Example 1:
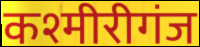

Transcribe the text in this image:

कश्मीरीगंज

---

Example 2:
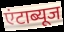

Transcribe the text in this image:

एंटाब्यूज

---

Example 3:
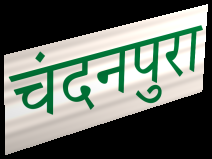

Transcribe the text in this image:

चंदनपुरा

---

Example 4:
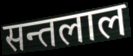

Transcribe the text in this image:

सन्तलाल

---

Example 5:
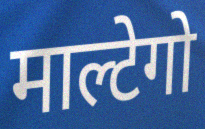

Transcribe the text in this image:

माल्टेगो